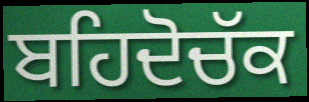
ਬਹਿਦੋਚੱਕ